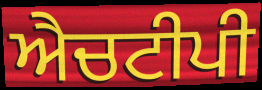
ਐਚਟੀਪੀ